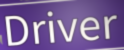
Driver